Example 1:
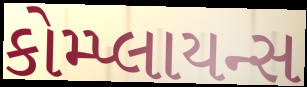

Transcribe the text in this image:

કોમ્પ્લાયન્સ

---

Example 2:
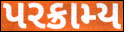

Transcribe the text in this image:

પરક્રામ્ય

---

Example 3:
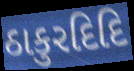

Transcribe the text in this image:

ઠાકુરદિદિ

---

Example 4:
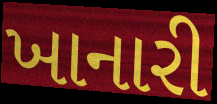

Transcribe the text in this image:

ખાનારી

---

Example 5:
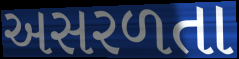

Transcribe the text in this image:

અસરળતા